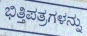
ಭಿತ್ತಿಪತ್ರಗಳನ್ನು